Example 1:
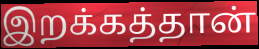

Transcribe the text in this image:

இறக்கத்தான்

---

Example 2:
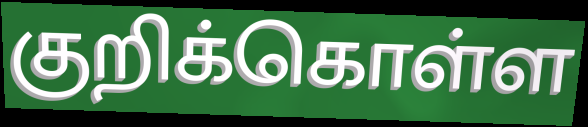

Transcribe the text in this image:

குறிக்கொள்ள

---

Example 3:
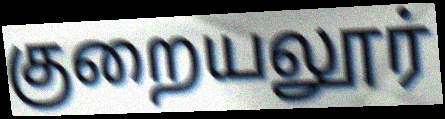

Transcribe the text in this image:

குறையலூர்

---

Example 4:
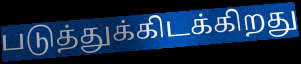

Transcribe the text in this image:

படுத்துக்கிடக்கிறது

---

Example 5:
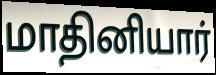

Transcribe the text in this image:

மாதினியார்